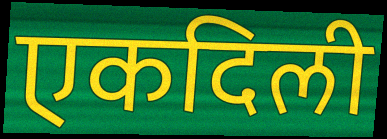
एकदिली